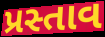
પ્રસ્તાવ